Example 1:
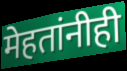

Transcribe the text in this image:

मेहतांनीही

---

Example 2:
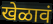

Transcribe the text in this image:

खेळावं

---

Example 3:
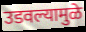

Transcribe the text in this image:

उडवल्यामुळे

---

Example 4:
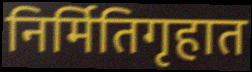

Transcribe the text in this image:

निर्मितिगृहात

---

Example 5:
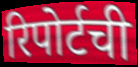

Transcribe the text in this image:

रिपोर्टची